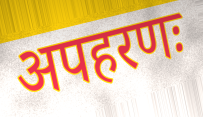
अपहरणः